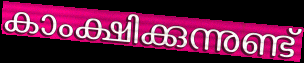
കാംക്ഷിക്കുന്നുണ്ട്